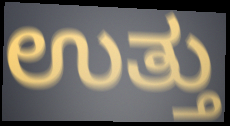
ಉತ್ತು